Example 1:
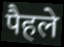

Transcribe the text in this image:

पैहले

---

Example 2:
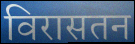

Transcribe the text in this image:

विरासतन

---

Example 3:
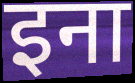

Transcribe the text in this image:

इना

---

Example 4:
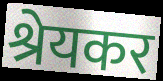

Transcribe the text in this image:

श्रेयकर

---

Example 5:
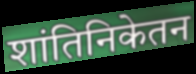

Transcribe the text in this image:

शांतिनिकेतन